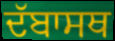
ਦੱਬਾਸਥ